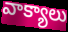
వాక్యాలు